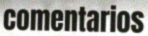
comentarios